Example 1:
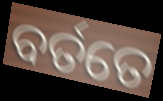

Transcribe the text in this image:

ବର୍ତତେ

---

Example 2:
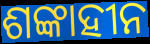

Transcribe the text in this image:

ଶଙ୍କାହୀନ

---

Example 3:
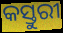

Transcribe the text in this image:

କସ୍ତୁରୀ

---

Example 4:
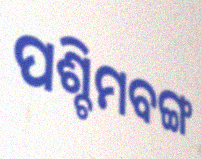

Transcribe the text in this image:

ପଶ୍ଚିମବଙ୍ଗ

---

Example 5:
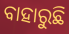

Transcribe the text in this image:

ବାହାରୁଛି